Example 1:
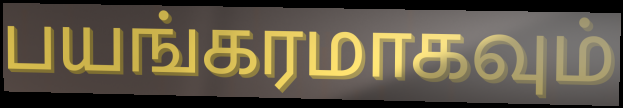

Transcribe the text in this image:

பயங்கரமாகவும்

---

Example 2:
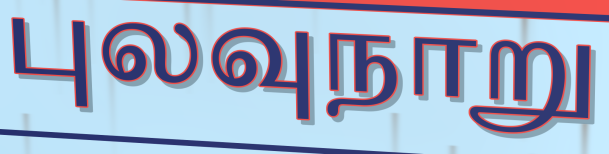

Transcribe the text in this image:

புலவுநாறு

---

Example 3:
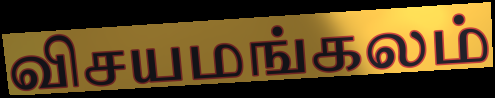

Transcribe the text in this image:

விசயமங்கலம்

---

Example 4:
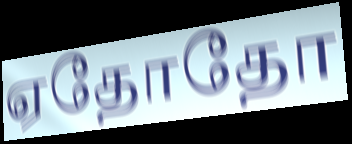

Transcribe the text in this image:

ஏதோதோ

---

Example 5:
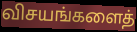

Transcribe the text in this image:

விசயங்களைத்